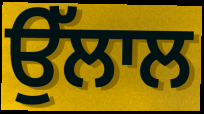
ਉੱਲਾਲ